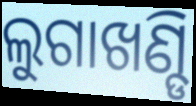
ଲୁଗାଖଣ୍ଡି